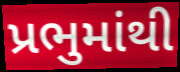
પ્રભુમાંથી